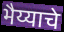
भैय्याचे